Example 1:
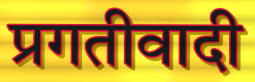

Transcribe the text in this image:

प्रगतीवादी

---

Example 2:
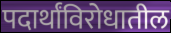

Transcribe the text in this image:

पदार्थांविरोधातील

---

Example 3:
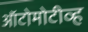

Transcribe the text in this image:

ऑटोमोटीव्ह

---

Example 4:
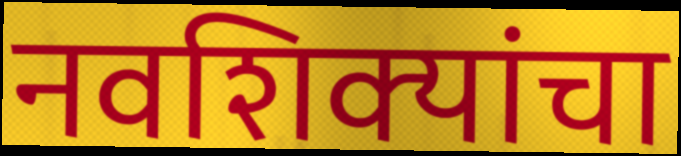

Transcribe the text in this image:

नवशिक्यांचा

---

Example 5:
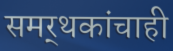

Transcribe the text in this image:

समर्थकांचाही